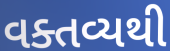
વક્તવ્યથી